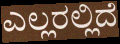
ಎಲ್ಲರಲ್ಲಿದೆ